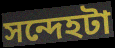
সন্দেহটা